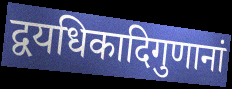
द्वयधिकादिगुणानां